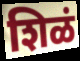
शिळं